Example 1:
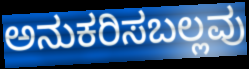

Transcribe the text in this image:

ಅನುಕರಿಸಬಲ್ಲವು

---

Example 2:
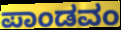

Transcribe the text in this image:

ಪಾಂಡವಂ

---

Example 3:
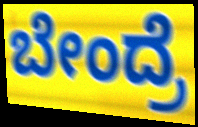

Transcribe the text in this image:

ಬೇಂದ್ರೆ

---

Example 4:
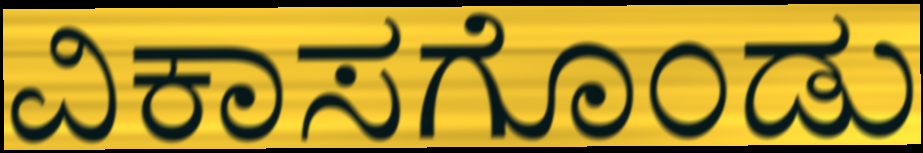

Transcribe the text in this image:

ವಿಕಾಸಗೊಂಡು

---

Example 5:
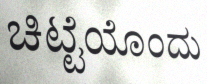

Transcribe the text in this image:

ಚಿಟ್ಟೆಯೊಂದು